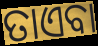
ତାଏବା